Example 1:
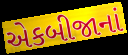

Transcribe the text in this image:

એકબીજાનાં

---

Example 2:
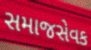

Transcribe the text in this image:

સમાજસેવક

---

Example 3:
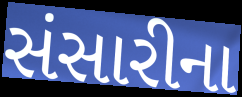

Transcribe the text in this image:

સંસારીના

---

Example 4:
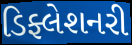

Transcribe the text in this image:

ડિફ્લેશનરી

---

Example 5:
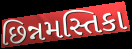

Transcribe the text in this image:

છિન્નમસ્તિકા